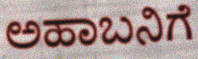
ಅಹಾಬನಿಗೆ